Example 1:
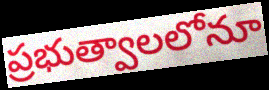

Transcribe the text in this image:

ప్రభుత్వాలలోనూ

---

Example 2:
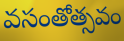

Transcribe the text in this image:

వసంతోత్సవం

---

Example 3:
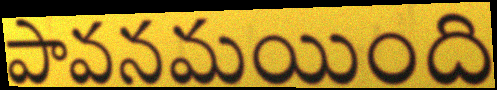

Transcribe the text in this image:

పావనమయింది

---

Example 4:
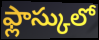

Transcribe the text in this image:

ఫ్లాస్కులో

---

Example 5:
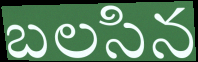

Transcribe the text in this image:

బలసిన